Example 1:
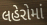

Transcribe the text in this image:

લહેરોમાં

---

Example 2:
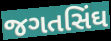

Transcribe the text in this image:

જગતસિંઘ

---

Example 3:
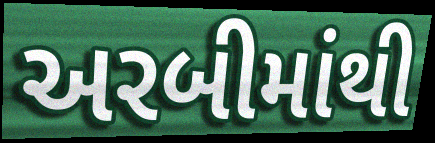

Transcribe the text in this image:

અરબીમાંથી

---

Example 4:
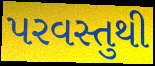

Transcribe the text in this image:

પરવસ્તુથી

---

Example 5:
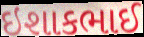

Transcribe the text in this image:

ઇશાકભાઈ